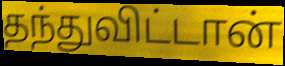
தந்துவிட்டான்